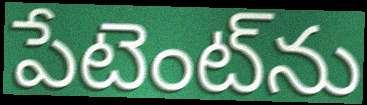
పేటెంట్‌ను